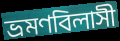
ভ্রমণবিলাসী